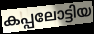
കപ്പലോട്ടിയ